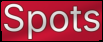
Spots